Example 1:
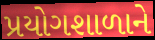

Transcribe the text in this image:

પ્રયોગશાળાને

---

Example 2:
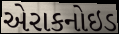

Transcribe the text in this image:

એરાકનોઇડ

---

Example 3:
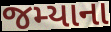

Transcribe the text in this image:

જમ્યાના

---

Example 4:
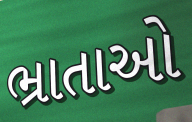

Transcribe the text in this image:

ભ્રાતાઓ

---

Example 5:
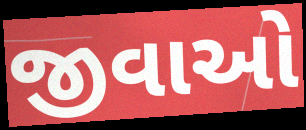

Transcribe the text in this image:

જીવાઓ